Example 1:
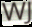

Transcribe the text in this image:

WJ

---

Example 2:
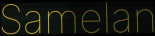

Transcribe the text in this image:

Samelan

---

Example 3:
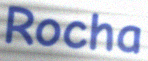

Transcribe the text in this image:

Rocha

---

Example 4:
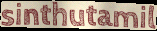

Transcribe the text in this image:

sinthutamil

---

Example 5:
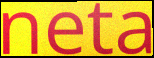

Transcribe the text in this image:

neta